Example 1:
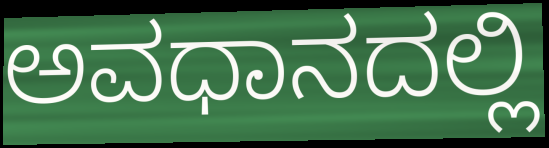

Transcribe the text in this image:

ಅವಧಾನದಲ್ಲಿ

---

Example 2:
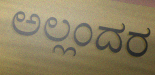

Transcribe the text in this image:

ಅಲ್ಲಂದರ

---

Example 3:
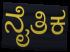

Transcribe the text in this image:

ನೈತಿಕ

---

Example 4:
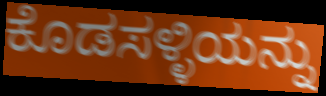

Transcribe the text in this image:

ಕೊಡಸಳ್ಳಿಯನ್ನು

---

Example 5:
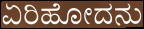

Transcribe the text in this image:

ಏರಿಹೋದನು